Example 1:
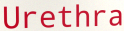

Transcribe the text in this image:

Urethra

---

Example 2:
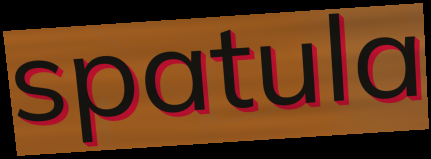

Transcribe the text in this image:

spatula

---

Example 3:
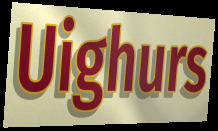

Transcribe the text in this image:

Uighurs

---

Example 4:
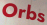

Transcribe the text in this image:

Orbs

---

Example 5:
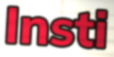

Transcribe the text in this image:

Insti